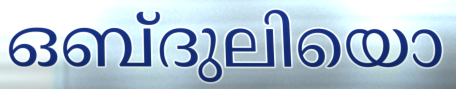
ഒബ്ദുലിയൊ